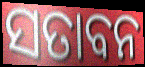
ସତାବନ